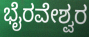
ಭೈರವೇಶ್ವರ